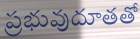
ప్రభువుదూతతో